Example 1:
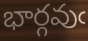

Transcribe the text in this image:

భార్గవుఁ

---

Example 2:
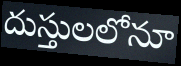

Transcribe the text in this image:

దుస్తులలోనూ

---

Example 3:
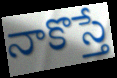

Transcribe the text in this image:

నాకొస్తే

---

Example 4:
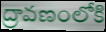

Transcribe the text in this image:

ద్రావణంలోకి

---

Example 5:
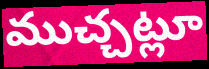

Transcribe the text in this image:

ముచ్చట్లూ